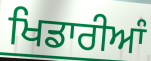
ਖਿਡਾਰੀਆੰ